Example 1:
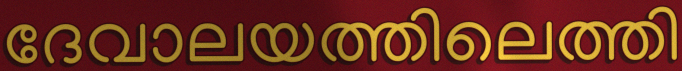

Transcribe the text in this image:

ദേവാലയത്തിലെത്തി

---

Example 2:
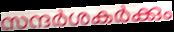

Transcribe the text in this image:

സന്ദർശകർക്കും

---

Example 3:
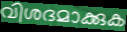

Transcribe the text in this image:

വിശദമാക്കുക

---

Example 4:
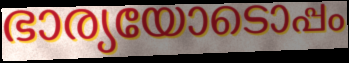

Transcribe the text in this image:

ഭാര്യയോടൊപ്പം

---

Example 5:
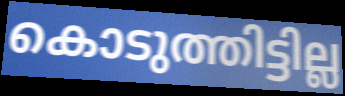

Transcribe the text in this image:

കൊടുത്തിട്ടില്ല